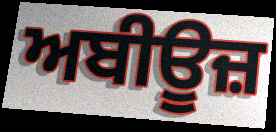
ਅਬੀਊਜ਼